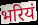
भरियं